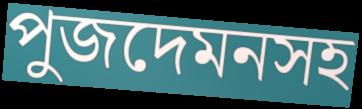
পুজদেমনসহ